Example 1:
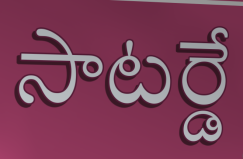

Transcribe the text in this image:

సాటర్డే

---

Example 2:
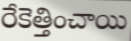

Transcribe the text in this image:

రేకెత్తించాయి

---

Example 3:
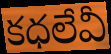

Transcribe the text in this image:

కధలేవీ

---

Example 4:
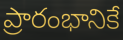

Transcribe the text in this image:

ప్రారంభానికే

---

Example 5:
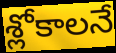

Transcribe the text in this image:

శ్లోకాలనే